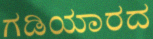
ಗಡಿಯಾರದ